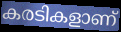
കരടികളാണ്